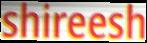
shireesh